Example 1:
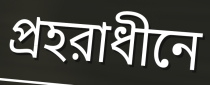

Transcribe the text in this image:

প্রহরাধীনে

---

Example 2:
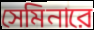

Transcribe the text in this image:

সেমিনারে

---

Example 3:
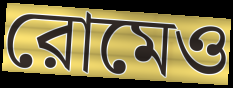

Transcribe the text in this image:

রোমেও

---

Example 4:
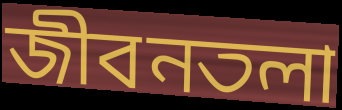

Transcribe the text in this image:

জীবনতলা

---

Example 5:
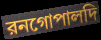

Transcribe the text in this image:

রনগোপালদি